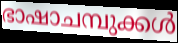
ഭാഷാചമ്പുക്കൾ